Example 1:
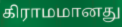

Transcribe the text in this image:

கிராமமானது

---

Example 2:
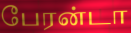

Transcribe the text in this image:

பேரன்டா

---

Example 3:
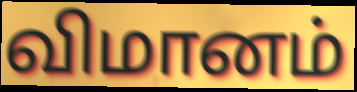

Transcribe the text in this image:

விமானம்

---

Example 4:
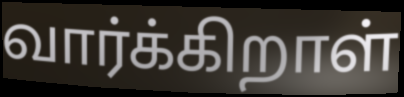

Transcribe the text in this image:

வார்க்கிறாள்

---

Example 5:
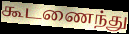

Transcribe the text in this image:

கூடணைந்து